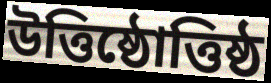
উত্তিষ্ঠোত্তিষ্ঠ